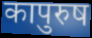
कापुरुष